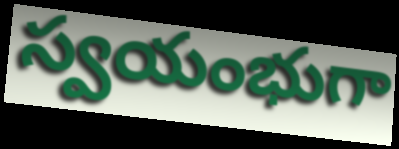
స్వయంభుగా